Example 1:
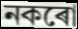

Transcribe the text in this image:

নকৰো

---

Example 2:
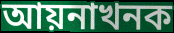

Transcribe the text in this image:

আয়নাখনক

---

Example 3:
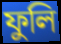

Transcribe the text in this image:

ফুলি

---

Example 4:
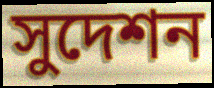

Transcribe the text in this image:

সুদেশন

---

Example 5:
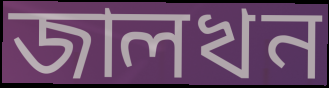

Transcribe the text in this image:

জালখন